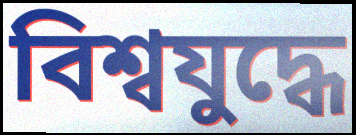
বিশ্বযুদ্ধে